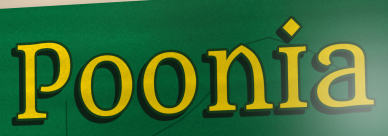
Poonia